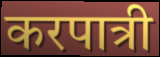
करपात्री